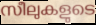
സീലുകളുടെ